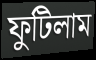
ফুটিলাম